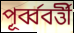
পূর্ব্ববর্ত্তী